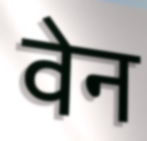
वेन